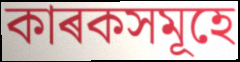
কাৰকসমূহে